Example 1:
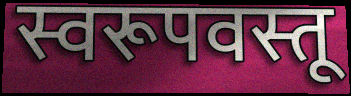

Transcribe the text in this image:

स्वरूपवस्तू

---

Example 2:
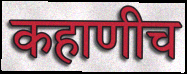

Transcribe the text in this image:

कहाणीच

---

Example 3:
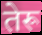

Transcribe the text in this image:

तेरू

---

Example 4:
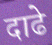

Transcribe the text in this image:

दाढे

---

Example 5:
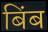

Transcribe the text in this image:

बिंब